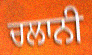
ਚਲਾਨੀ